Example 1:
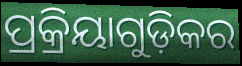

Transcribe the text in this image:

ପ୍ରକ୍ରିୟାଗୁଡ଼ିକର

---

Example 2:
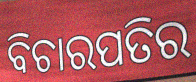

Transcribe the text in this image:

ବିଚାରପତିର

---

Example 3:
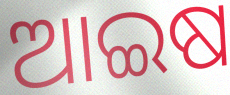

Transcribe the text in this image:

ଆଇଷ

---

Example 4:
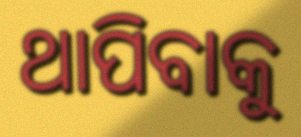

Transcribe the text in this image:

ଥାପିବାକୁ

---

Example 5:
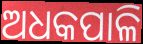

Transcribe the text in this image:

ଅଧକପାଳି